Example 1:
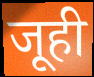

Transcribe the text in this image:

जूही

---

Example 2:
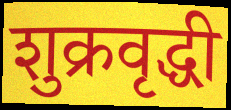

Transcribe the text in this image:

शुक्रवृद्धी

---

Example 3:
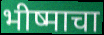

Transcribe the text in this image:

भीष्माचा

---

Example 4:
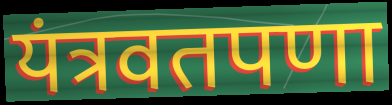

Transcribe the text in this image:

यंत्रवतपणा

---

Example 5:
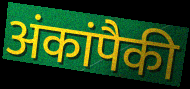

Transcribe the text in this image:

अंकांपैकी